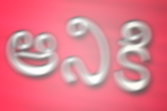
ఆనికి